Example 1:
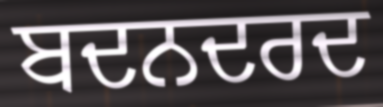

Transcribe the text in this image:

ਬਦਨਦਰਦ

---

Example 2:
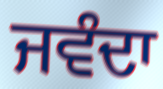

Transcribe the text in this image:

ਜਵੰਦਾ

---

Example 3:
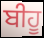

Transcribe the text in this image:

ਬੀਹੂ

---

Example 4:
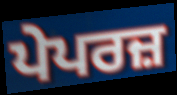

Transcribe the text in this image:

ਪੇਪਰਜ਼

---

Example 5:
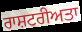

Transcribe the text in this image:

ਰਾਸ਼ਟਰੀਅਤਾ